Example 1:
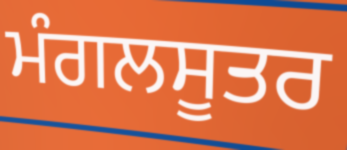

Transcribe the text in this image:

ਮੰਗਲਸੂਤਰ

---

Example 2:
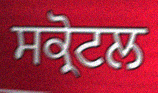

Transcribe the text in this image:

ਸਕ੍ਰੋਟਲ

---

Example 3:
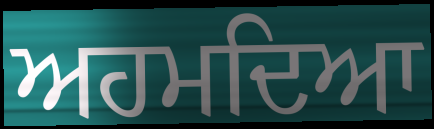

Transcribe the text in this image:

ਅਹਮਦਿਆ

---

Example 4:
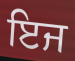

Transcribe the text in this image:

ਇਜ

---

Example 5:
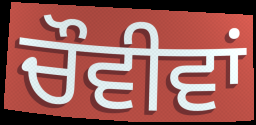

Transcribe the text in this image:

ਚੌਵੀਵਾਂ